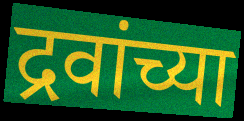
द्रवांच्या